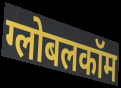
ग्लोबलकॉम